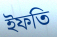
ইফতি